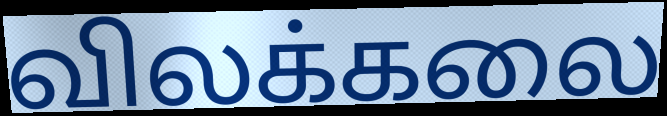
விலக்கலை